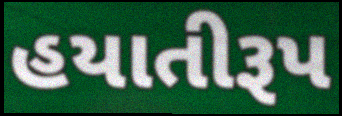
હયાતીરૂપ